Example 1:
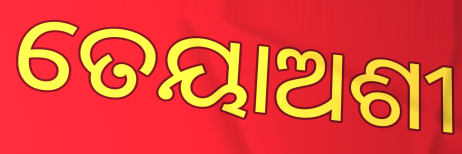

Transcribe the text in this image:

ତେୟାଅଶୀ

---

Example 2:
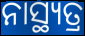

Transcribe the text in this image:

ନାସ୍ଥ୍ୟତ୍ର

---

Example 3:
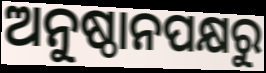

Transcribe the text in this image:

ଅନୁଷ୍ଠାନପକ୍ଷରୁ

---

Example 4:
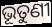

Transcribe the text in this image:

ଭୂତୁଣୀ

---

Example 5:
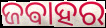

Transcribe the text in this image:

ଜଵାହର